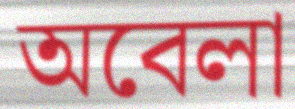
অবেলা